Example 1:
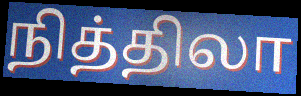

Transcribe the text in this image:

நித்திலா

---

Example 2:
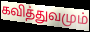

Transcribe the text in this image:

கவித்துவமும்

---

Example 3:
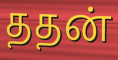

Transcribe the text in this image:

ததன்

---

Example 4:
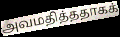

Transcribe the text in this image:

அவமதித்ததாகக்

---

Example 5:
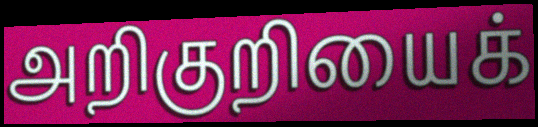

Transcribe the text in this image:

அறிகுறியைக்